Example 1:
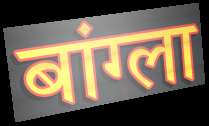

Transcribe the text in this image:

बांग्ला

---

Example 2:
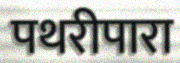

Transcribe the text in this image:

पथरीपारा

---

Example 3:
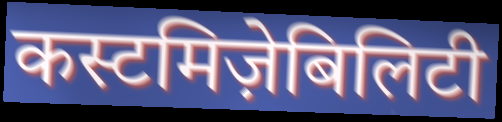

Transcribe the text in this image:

कस्टमिज़ेबिलिटी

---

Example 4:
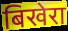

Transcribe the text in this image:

बिखेरा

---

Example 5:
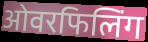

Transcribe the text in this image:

ओवरफिलिंग